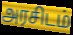
அரசிடம்